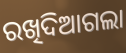
ରଖିଦିଆଗଲା